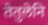
तेतुलेनि